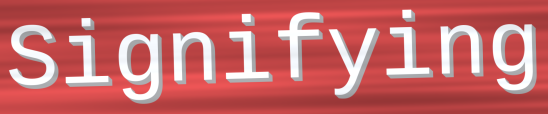
Signifying